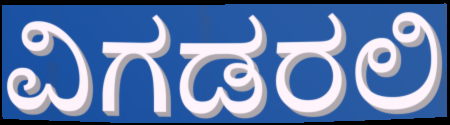
ವಿಗಡರಲಿ